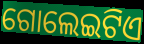
ଗୋଲେଇଟିଏ